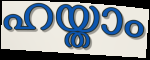
ഹയ്താം